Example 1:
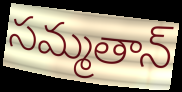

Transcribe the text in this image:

సమ్మతాన్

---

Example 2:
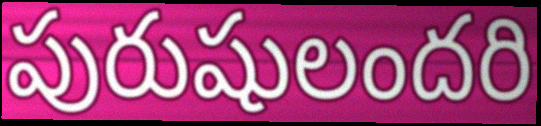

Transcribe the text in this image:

పురుషులందరి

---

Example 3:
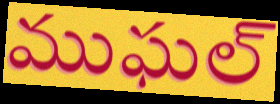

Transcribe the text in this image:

ముఘల్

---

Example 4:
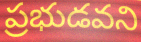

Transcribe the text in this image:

ప్రభుడవని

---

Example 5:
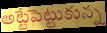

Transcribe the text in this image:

అట్టేపెట్టుకున్న